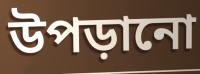
উপড়ানো